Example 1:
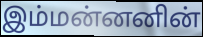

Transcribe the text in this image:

இம்மன்னனின்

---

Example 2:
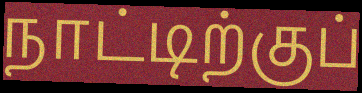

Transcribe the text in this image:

நாட்டிற்குப்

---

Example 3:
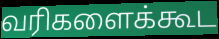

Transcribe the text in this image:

வரிகளைக்கூட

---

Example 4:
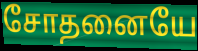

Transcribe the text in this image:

சோதனையே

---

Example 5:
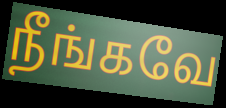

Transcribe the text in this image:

நீங்கவே